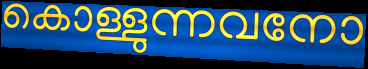
കൊള്ളുന്നവനോ